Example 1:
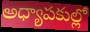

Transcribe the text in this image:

అధ్యాపకుల్లో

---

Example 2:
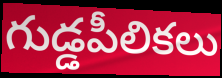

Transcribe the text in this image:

గుడ్డపీలికలు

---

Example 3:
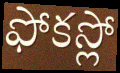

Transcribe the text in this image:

ఫోకస్లో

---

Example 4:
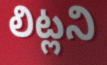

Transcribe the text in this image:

లిట్లని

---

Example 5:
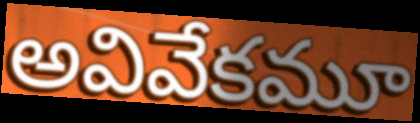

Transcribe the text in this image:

అవివేకమూ